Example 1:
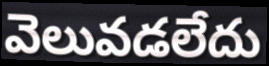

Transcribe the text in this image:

వెలువడలేదు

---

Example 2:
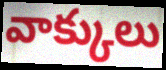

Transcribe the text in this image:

వాక్కులు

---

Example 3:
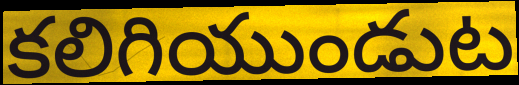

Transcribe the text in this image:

కలిగియుండుట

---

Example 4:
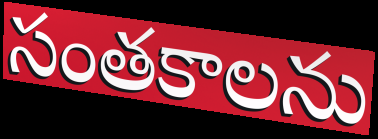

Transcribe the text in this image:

సంతకాలను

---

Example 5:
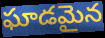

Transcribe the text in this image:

ఘాడమైన